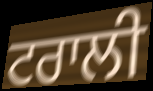
ਟਰਾਲੀ